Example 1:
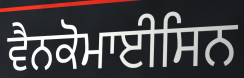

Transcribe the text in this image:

ਵੈਨਕੋਮਾਈਸਿਨ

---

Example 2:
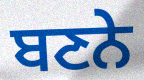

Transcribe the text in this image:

ਬਣਨੇ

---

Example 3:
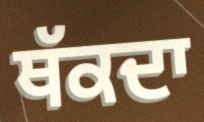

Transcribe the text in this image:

ਥੱਕਦਾ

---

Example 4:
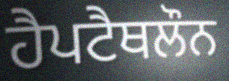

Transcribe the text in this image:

ਹੈਪਟੈਥਲੌਨ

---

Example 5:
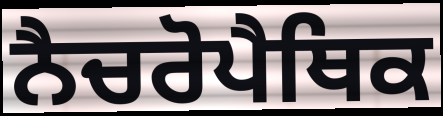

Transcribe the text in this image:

ਨੈਚਰੋਪੈਥਿਕ